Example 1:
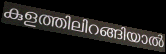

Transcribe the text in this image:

കുളത്തിലിറങ്ങിയാൽ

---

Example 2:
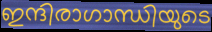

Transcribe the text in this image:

ഇന്ദിരാഗാന്ധിയുടെ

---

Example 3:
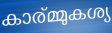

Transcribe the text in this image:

കാര്മ്മുകശ്യ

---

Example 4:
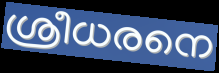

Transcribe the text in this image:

ശ്രീധരനെ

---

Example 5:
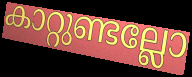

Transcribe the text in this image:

കാറ്റുണ്ടല്ലോ